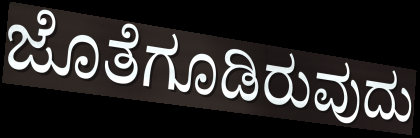
ಜೊತೆಗೂಡಿರುವುದು